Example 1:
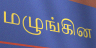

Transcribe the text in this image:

மழுங்கின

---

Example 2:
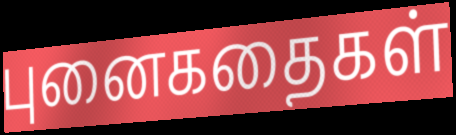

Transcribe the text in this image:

புனைகதைகள்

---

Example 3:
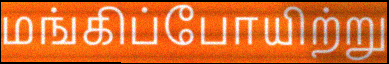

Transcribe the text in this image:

மங்கிப்போயிற்று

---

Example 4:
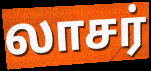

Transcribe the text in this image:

லாசர்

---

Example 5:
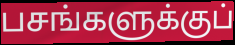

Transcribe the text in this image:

பசங்களுக்குப்